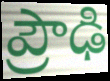
ప్రౌఢి